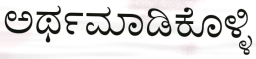
ಅರ್ಥಮಾಡಿಕೊಳ್ಳಿ